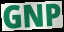
GNP